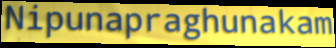
Nipunapraghunakam